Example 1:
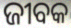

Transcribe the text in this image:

ଜୀବକ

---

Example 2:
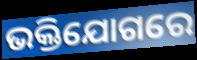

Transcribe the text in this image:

ଭକ୍ତିଯୋଗରେ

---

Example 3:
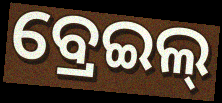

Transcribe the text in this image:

ବ୍ରେଇଲ୍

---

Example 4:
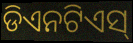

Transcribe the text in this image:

ଡିଏନଟିଏସ୍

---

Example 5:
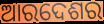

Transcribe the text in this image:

ଆରଦେଶର